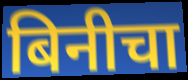
बिनीचा